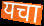
यचा